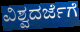
ವಿಶ್ವದರ್ಜೆಗೆ